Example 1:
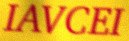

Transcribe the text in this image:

IAVCEI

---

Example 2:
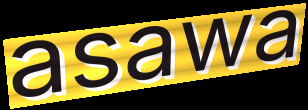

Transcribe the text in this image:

asawa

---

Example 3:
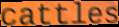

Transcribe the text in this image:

cattles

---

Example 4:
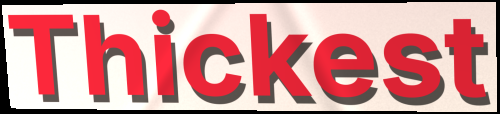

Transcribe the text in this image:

Thickest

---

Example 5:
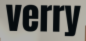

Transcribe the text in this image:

verry